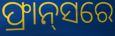
ଫ୍ରାନ୍‌ସରେ